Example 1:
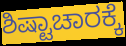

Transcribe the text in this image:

ಶಿಷ್ಟಾಚಾರಕ್ಕೆ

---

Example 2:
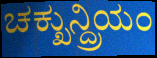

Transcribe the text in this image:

ಚಕ್ಖುನ್ದ್ರಿಯಂ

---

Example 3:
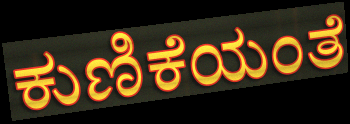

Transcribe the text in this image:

ಕುಣಿಕೆಯಂತೆ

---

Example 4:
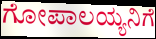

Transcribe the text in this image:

ಗೋಪಾಲಯ್ಯನಿಗೆ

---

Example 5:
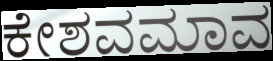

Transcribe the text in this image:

ಕೇಶವಮಾವ